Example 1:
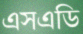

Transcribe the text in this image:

এসএডি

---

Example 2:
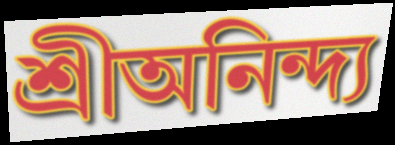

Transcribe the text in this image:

শ্রীঅনিন্দ্য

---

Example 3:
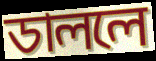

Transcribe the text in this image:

ডাললে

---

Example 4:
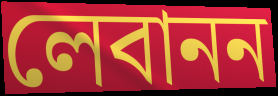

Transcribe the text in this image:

লেবানন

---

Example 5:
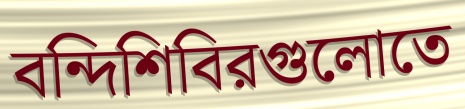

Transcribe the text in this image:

বন্দিশিবিরগুলোতে